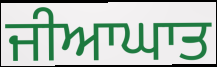
ਜੀਆਘਾਤ